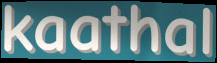
kaathal